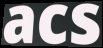
acs